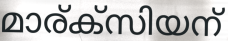
മാര്ക്സിയന്